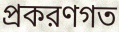
প্রকরণগত